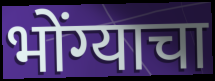
भोंग्याचा